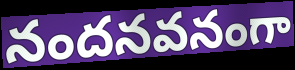
నందనవనంగా